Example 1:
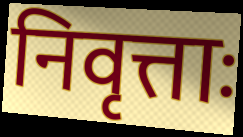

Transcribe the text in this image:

निवृत्ताः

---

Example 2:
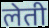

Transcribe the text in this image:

लेती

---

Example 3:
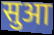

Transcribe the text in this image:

सुआ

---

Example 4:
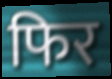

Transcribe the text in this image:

फिर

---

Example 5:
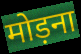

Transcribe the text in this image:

मोड़ना